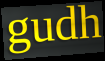
gudh